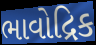
ભાવોદ્રિક